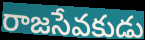
రాజసేవకుడు